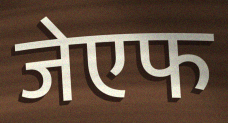
जेएफ